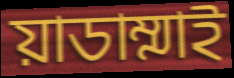
য়াডাম্মাই